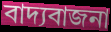
বাদ্যবাজনা